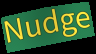
Nudge